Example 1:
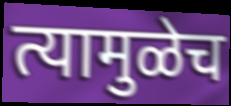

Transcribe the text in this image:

त्यामुळेच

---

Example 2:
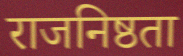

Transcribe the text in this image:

राजनिष्ठता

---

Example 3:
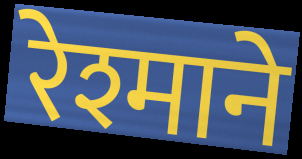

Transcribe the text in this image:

रेश्माने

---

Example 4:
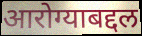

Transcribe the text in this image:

आरोग्याबद्दल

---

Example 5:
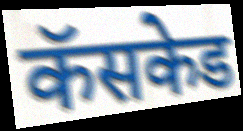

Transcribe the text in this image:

कॅसकेड